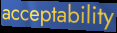
acceptability